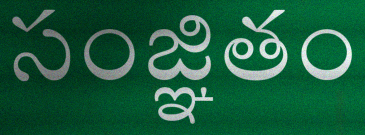
సంజ్ఞితం